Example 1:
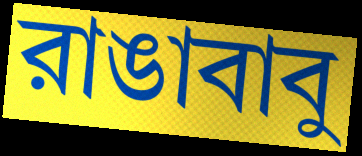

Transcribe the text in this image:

রাঙাবাবু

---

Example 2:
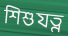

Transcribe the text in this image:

শিশুযত্ন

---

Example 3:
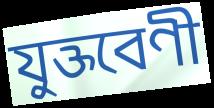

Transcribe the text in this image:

যুক্তবেণী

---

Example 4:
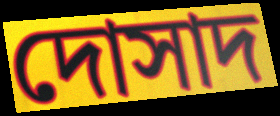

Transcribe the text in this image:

দোসাদ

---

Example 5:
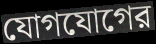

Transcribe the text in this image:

যোগযোগের